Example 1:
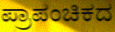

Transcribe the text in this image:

ಪ್ರಾಪಂಚಿಕದ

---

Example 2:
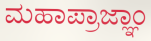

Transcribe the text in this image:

ಮಹಾಪ್ರಾಜ್ಞಾಂ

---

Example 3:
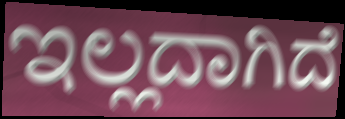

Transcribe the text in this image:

ಇಲ್ಲದಾಗಿದೆ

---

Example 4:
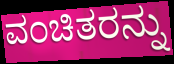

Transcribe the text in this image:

ವಂಚಿತರನ್ನು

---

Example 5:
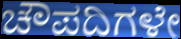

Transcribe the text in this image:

ಚೌಪದಿಗಳೇ